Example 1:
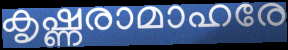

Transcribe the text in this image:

കൃഷ്ണരാമാഹരേ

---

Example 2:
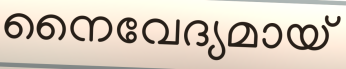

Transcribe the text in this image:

നൈവേദ്യമായ്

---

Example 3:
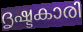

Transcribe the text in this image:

ദൃഷ്ടകാരി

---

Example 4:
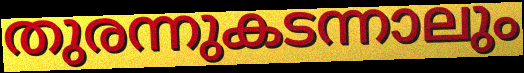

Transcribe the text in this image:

തുരന്നുകടന്നാലും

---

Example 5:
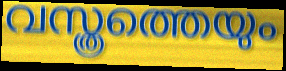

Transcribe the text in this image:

വസ്ത്രത്തെയും